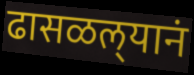
ढासळल्यानं